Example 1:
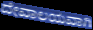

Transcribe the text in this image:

ದೇವಾಲಯವಾಗಿ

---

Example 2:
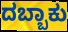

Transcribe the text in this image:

ದಬ್ಬಾಕು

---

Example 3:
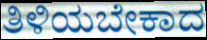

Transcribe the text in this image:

ತಿಳಿಯಬೇಕಾದ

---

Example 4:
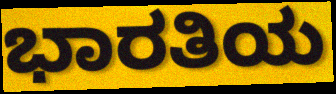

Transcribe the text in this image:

ಭಾರತಿಯ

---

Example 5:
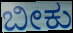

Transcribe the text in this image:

ಬೀಕು